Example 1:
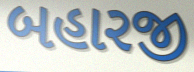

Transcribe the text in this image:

બહારજી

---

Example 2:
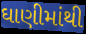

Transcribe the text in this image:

ઘાણીમાંથી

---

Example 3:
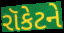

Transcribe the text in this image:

રૉકેટને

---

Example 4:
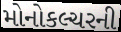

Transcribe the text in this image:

મોનોકલ્ચરની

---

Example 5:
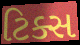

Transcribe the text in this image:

ટિક્સ